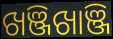
ଖଞ୍ଜିଖାଞ୍ଜି